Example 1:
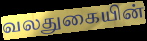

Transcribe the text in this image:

வலதுகையின்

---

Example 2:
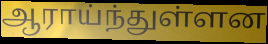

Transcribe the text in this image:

ஆராய்ந்துள்ளன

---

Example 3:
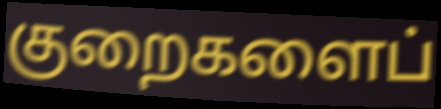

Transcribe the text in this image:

குறைகளைப்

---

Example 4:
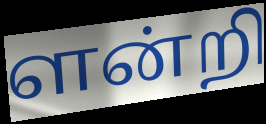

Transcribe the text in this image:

ளன்றி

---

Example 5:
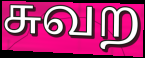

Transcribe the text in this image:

சுவற